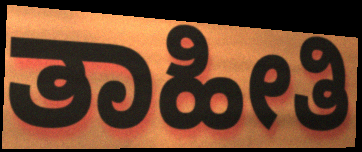
ತಾಹೀತಿ